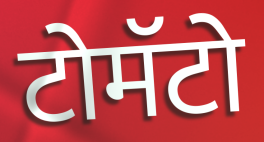
टोमॅटो